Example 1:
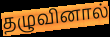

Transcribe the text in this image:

தழுவினால்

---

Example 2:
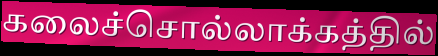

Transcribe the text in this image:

கலைச்சொல்லாக்கத்தில்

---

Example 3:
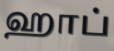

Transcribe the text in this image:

ஹாப்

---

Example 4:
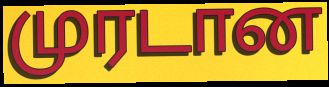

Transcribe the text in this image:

முரடான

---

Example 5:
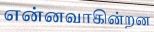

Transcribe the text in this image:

என்னவாகின்றன